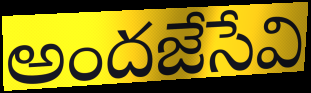
అందజేసేవి